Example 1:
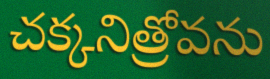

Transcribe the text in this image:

చక్కనిత్రోవను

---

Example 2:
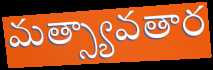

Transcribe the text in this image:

మత్స్యావతార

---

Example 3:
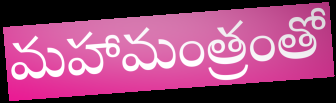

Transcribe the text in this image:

మహామంత్రంతో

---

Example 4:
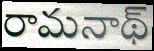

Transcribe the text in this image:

రామనాథ్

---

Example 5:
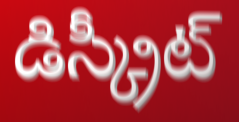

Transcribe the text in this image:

డిస్క్రీట్